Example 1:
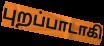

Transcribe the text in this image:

புறப்பாடாகி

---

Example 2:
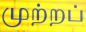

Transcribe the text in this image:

முற்றப்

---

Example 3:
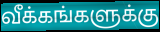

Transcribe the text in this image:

வீக்கங்களுக்கு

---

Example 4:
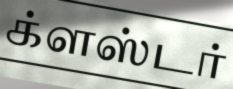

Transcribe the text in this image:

க்ளஸ்டர்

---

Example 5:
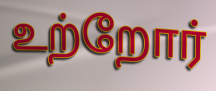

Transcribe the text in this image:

உற்றோர்